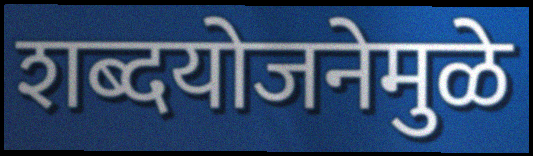
शब्दयोजनेमुळे